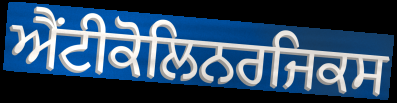
ਐਂਟੀਕੋਲਿਨਰਜਿਕਸ